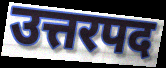
उत्तरपद